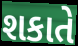
શકાતે